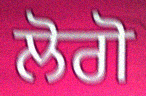
ਲੋਗੋ